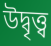
উদ্বৃত্ত্ব